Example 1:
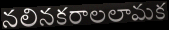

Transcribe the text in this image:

నలినకరాలలామక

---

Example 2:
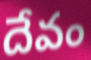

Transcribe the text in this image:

దేవం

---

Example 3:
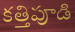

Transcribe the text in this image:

కత్తిపూడి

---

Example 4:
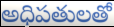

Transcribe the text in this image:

అధిపతులతో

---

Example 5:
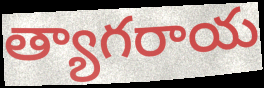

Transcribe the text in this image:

త్యాగరాయ